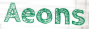
Aeons